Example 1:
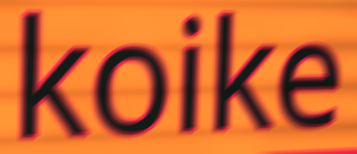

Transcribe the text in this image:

koike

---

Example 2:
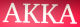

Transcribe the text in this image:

AKKA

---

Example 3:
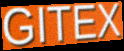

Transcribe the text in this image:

GITEX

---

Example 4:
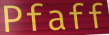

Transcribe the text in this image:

Pfaff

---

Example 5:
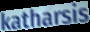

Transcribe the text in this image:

katharsis